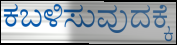
ಕಬಳಿಸುವುದಕ್ಕೆ